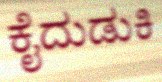
ಕೈದುಡುಕಿ